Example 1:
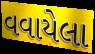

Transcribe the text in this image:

વવાયેલા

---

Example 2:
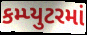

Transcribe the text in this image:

કમ્પ્યુટરમાં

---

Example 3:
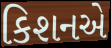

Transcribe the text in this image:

કિશનએ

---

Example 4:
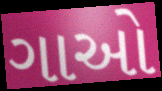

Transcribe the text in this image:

ગાઓ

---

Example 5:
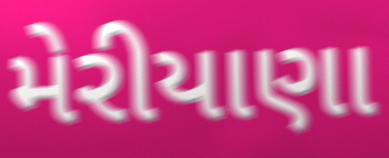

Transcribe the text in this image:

મેરીયાણા